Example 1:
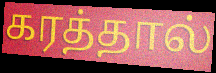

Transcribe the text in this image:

கரத்தால்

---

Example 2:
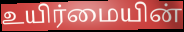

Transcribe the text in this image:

உயிர்மையின்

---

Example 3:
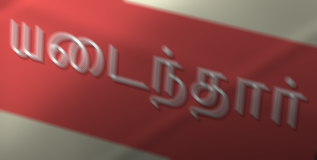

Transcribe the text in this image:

யடைந்தார்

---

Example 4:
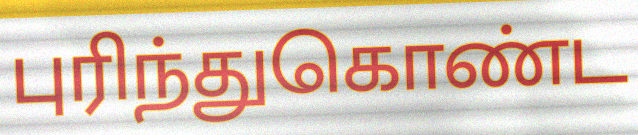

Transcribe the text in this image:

புரிந்துகொண்ட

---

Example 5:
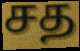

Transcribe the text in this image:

சத